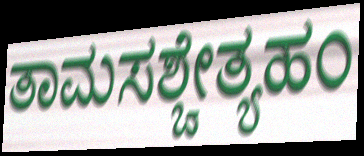
ತಾಮಸಶ್ಚೇತ್ಯಹಂ